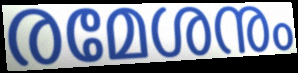
രമേശനും